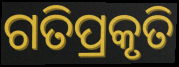
ଗତିପ୍ରକୃତି